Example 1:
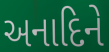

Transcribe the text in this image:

અનાદિને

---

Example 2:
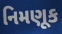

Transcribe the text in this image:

નિમણૂક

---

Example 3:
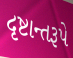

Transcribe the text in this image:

દૃષ્ટાન્તરૂપે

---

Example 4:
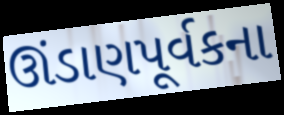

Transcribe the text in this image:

ઊંડાણપૂર્વકના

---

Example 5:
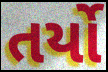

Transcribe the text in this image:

તર્યો